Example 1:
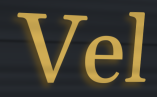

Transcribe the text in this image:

Vel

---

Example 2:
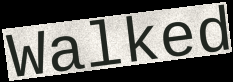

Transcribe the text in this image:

Walked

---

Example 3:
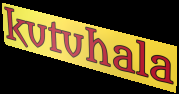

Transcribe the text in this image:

kutuhala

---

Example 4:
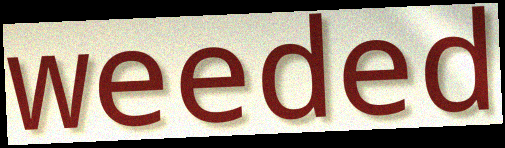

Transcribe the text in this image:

weeded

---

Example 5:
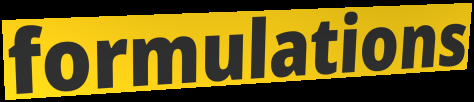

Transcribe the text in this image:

formulations